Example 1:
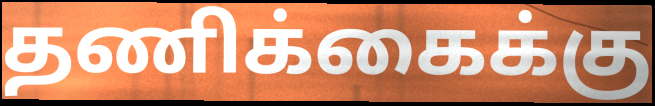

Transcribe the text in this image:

தணிக்கைக்கு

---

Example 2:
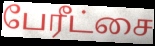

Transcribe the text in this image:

பேரீட்சை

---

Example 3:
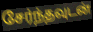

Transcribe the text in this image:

சேர்ந்தவுடன்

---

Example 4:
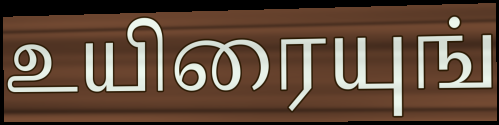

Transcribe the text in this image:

உயிரையுங்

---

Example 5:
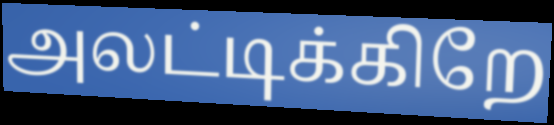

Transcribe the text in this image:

அலட்டிக்கிறே